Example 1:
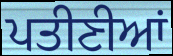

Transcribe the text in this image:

ਪਤੀਣੀਆਂ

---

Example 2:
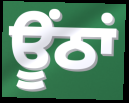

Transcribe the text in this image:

ਊਂਠਾਂ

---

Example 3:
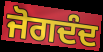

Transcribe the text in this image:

ਜੋਗਦੰਦ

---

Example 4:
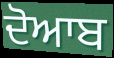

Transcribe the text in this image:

ਦੋਆਬ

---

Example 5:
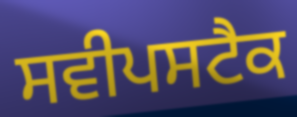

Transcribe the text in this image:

ਸਵੀਪਸਟੈਕ